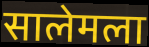
सालेमला